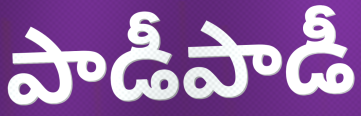
పాడీపాడీ